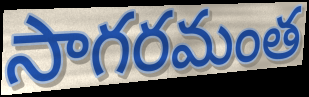
సాగరమంత